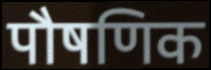
पौषणिक